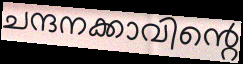
ചന്ദനക്കാവിന്റെ